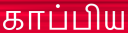
காப்பிய